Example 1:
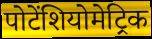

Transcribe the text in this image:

पोटेंशियोमेट्रिक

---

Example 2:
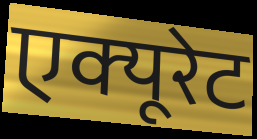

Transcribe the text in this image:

एक्यूरेट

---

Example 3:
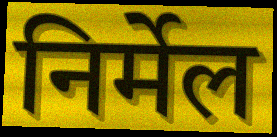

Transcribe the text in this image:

निर्मेल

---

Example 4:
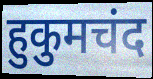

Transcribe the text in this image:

हुकुमचंद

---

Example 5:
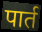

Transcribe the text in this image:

पार्त